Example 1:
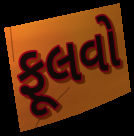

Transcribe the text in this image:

ફૂલવો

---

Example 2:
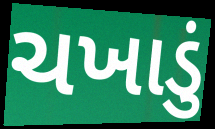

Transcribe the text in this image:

ચખાડું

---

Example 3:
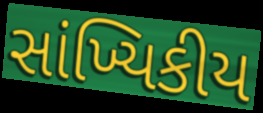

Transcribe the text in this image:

સાંખ્યિકીય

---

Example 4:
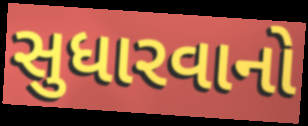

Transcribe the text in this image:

સુધારવાનો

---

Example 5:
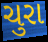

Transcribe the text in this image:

ચુરા